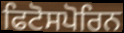
ਫਿਟੋਸਪੋਰਿਨ